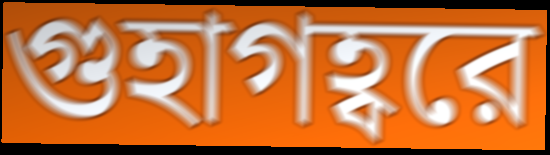
গুহাগহ্বরে